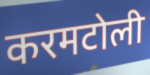
करमटोली